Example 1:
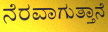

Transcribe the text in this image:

ನೆರವಾಗುತ್ತಾನೆ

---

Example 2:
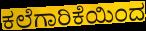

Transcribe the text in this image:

ಕಲೆಗಾರಿಕೆಯಿಂದ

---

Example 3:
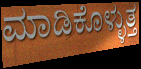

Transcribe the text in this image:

ಮಾಡಿಕೊಳ್ಳುತ್ತ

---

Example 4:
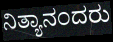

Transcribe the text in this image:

ನಿತ್ಯಾನಂದರು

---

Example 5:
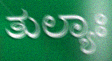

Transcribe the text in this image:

ತುಲ್ಯಾಃ